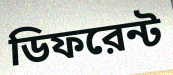
ডিফরেন্ট